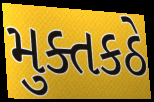
મુક્તકઠે